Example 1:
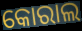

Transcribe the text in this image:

କୋରାଲ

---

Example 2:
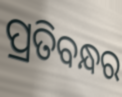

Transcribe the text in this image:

ପ୍ରତିବନ୍ଧର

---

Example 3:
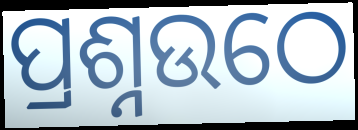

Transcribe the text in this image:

ପ୍ରଶ୍ନଉଠେ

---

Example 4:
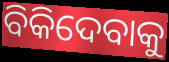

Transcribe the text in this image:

ବିକିଦେବାକୁ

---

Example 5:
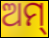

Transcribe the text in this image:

ଅମ୍